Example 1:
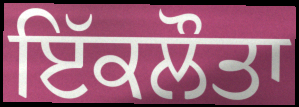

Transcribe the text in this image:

ਇੱਕਲੌਤਾ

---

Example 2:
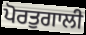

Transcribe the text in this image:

ਪੋਰਤੁਗਾਲੀ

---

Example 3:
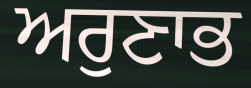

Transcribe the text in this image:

ਅਰੁਣਾਭ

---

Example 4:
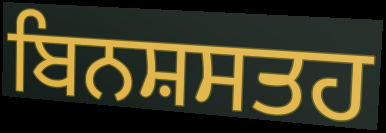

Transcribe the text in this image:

ਬਿਨਸ਼ਸਤਹ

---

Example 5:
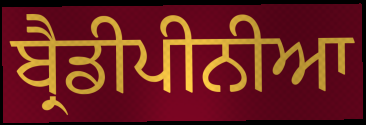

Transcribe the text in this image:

ਬ੍ਰੈਡੀਪੀਨੀਆ